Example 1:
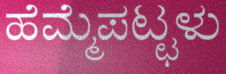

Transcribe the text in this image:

ಹೆಮ್ಮೆಪಟ್ಟಳು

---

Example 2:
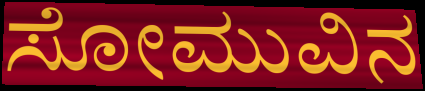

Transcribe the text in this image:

ಸೋಮುವಿನ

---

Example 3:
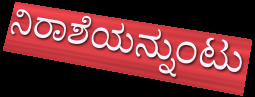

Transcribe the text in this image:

ನಿರಾಶೆಯನ್ನುಂಟು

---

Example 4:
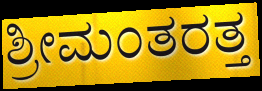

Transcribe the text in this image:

ಶ್ರೀಮಂತರತ್ತ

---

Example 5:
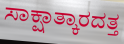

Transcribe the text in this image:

ಸಾಕ್ಷಾತ್ಕಾರದತ್ತ